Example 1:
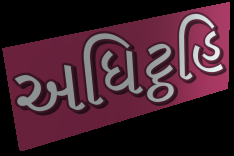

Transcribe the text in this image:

અધિટ્ઠહિ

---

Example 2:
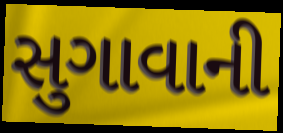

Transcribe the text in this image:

સુગાવાની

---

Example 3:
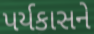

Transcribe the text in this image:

પર્યકાસને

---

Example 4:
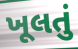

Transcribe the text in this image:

ખૂલતું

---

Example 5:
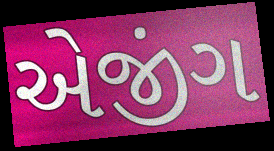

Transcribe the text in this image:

એજીંગ